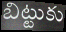
బిట్టుకు